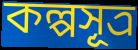
কল্পসূত্র